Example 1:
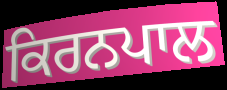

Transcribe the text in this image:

ਕਿਰਨਪਾਲ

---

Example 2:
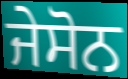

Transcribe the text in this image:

ਜੇਸੋਨ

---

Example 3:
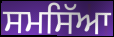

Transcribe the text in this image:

ਸਮਸਿੱਆ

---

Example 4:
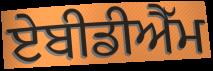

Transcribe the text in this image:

ਏਬੀਡੀਐੱਮ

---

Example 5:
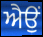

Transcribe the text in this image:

ਐਉਂ